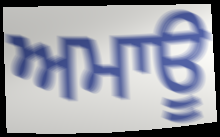
ਅਮਾਊ